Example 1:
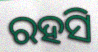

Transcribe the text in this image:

ରହସି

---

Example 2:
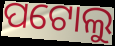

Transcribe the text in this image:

ପଟୋଲୁ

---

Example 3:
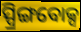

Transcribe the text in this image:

ସ୍ପ୍ରିଙ୍ଗବୋକ୍ସ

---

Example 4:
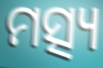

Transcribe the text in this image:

ମତ୍ସ୍ୟ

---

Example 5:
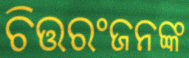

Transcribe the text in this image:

ଚିତ୍ତରଂଜନଙ୍କ